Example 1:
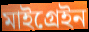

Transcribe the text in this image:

মাইগ্ৰেইন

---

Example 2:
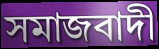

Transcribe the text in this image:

সমাজবাদী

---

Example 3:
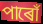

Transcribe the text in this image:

পাৰোঁ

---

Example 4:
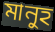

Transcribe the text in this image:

মানুহ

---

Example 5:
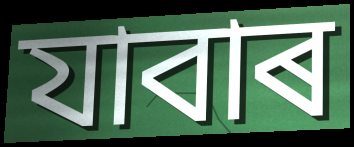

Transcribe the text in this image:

যাবাৰ